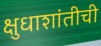
क्षुधाशांतीची